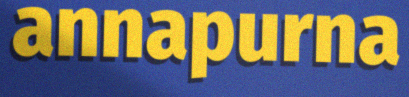
annapurna